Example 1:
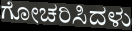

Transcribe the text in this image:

ಗೋಚರಿಸಿದಳು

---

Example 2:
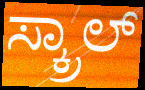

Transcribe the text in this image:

ಸ್ಕ್ರಾಲ್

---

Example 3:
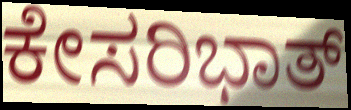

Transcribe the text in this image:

ಕೇಸರಿಭಾತ್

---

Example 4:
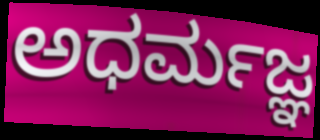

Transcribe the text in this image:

ಅಧರ್ಮಜ್ಞ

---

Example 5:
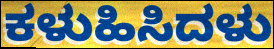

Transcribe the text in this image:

ಕಳುಹಿಸಿದಳು